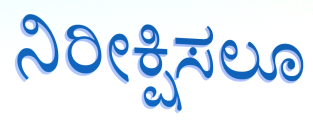
ನಿರೀಕ್ಷಿಸಲೂ